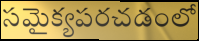
సమైక్యపరచడంలో